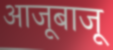
आजूबाजू